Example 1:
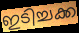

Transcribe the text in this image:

ഇടിച്ചക്ക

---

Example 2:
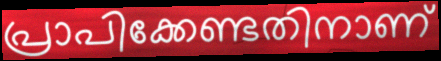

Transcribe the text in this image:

പ്രാപിക്കേണ്ടതിനാണ്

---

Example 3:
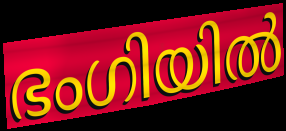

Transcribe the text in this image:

ഭംഗിയിൽ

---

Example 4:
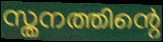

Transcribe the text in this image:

സ്തനത്തിന്റെ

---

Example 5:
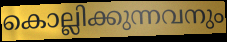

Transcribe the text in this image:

കൊല്ലിക്കുന്നവനും